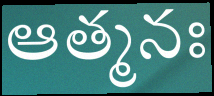
ఆత్మనః